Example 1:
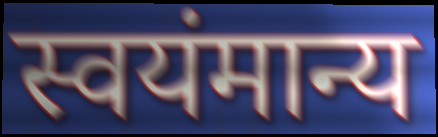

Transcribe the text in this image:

स्वयंमान्य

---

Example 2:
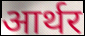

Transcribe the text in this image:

आर्थर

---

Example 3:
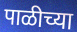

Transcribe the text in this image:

पाळीच्या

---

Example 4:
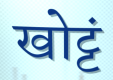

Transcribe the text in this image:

खोट्टं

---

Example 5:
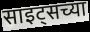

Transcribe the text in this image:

साइट्सच्या